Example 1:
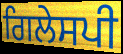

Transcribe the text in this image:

ਗਿਲੇਸਪੀ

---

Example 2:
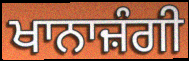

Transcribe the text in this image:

ਖਾਨਾਜ਼ੰਗੀ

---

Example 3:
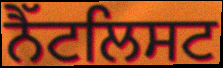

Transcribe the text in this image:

ਨੈੱਟਲਿਸਟ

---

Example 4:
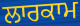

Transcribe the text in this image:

ਲਾਰਕਾਮ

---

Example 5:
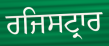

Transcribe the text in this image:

ਰਜਿਸਟ੍ਰਾਰ